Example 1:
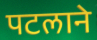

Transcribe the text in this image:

पटलाने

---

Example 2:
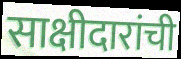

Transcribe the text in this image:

साक्षीदारांची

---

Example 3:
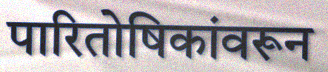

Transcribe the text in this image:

पारितोषिकांवरून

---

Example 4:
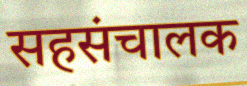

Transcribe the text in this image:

सहसंचालक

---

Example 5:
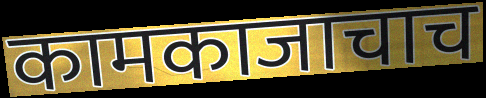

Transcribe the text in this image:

कामकाजाचाच